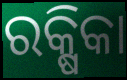
ରକ୍ଷିକା